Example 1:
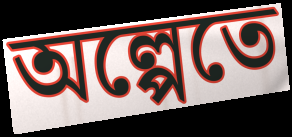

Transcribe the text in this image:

অল্পেতে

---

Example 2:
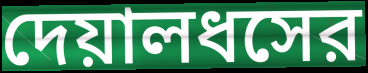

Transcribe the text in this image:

দেয়ালধসের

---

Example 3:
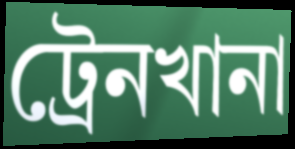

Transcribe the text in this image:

ট্রেনখানা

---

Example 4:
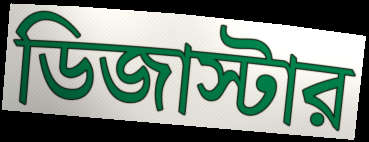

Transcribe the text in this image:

ডিজাস্টার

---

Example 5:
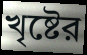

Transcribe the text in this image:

খৃষ্টের